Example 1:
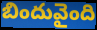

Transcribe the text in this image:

బిందువైంది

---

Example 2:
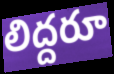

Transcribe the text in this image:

లిద్దరూ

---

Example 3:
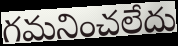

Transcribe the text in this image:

గమనించలేదు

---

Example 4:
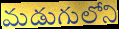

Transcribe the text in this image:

మడుగులోని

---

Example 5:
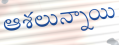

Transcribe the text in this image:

ఆశలున్నాయి